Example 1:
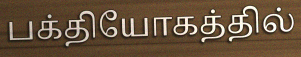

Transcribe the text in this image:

பக்தியோகத்தில்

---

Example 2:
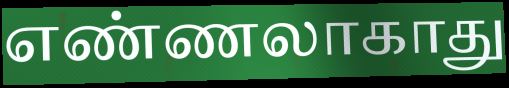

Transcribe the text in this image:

எண்ணலாகாது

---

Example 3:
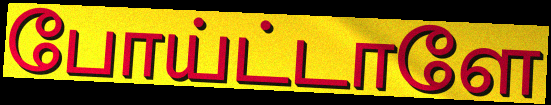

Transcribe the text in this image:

போய்ட்டாளே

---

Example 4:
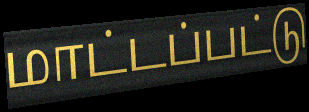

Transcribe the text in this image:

மாட்டப்பட்டு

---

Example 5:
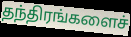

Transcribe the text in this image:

தந்திரங்களைச்